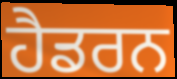
ਹੈਡਰਨ